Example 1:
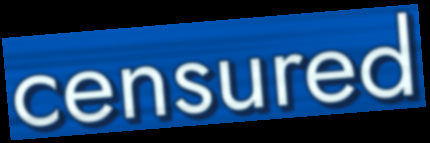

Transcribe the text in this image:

censured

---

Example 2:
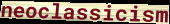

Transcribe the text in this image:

neoclassicism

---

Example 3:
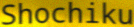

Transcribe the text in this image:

Shochiku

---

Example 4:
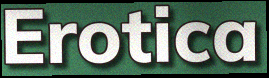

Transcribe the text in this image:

Erotica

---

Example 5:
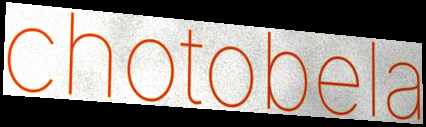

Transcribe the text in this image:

chotobela